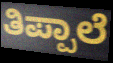
ತಿಪ್ಪಾಲೆ